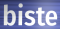
biste